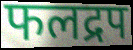
फलद्रप